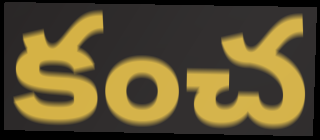
కంచ